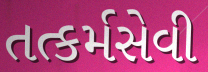
તત્કર્મસેવી